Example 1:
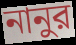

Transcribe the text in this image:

নানুর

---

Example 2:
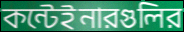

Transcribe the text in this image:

কন্টেইনারগুলির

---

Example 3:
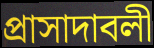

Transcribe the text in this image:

প্রাসাদাবলী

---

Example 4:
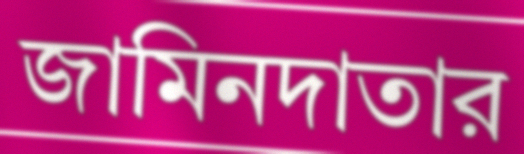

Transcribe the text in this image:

জামিনদাতার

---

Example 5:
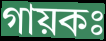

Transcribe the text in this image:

গায়কঃ